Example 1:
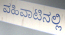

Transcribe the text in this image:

ವಹಿವಾಟಿನಲ್ಲಿ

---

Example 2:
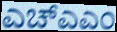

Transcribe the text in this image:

ಎಚ್ಎಎಂ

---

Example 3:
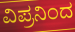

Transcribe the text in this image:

ವಿಪ್ರನಿಂದ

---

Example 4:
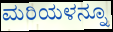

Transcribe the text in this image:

ಮರಿಯಳನ್ನೂ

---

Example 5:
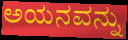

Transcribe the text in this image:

ಅಯನವನ್ನು